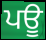
ਪਊ